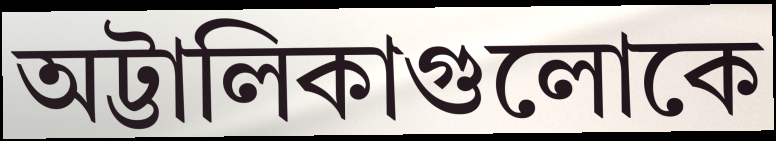
অট্টালিকাগুলোকে